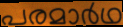
പരമാർഥ